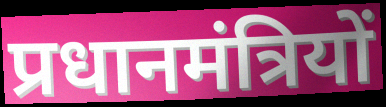
प्रधानमंत्रियों